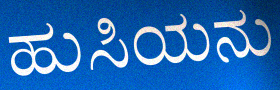
ಹುಸಿಯನು